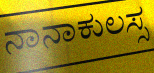
ನಾನಾಕುಲಸ್ಸ